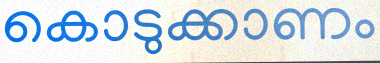
കൊടുക്കാണം